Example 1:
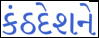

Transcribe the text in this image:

કંઠદેશને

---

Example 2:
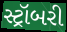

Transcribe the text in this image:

સ્ટ્રૉબરી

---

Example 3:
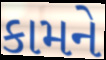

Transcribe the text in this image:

કામને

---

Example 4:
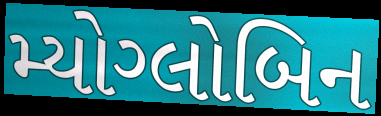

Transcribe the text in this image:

મ્યોગ્લોબિન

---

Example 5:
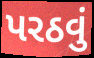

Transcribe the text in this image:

પરઠવું